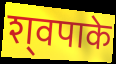
श्वपाके